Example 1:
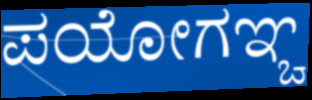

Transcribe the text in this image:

ಪಯೋಗಞ್ಚ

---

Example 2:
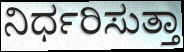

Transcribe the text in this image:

ನಿರ್ಧರಿಸುತ್ತಾ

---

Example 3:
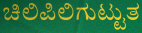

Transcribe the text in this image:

ಚಿಲಿಪಿಲಿಗುಟ್ಟುತ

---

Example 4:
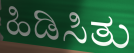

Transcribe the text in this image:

ಹಿಡಿಸಿತು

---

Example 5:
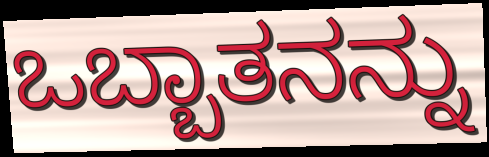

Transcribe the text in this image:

ಒಬ್ಬಾತನನ್ನು